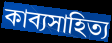
কাব্যসাহিত্য